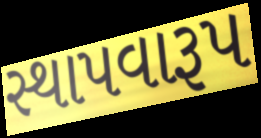
સ્થાપવારૂપ